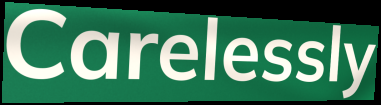
Carelessly